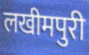
लखीमपुरी